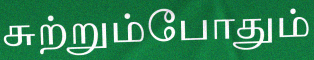
சுற்றும்போதும்